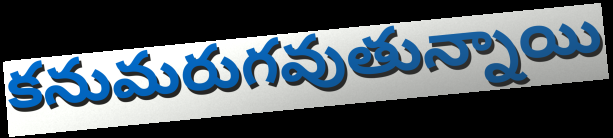
కనుమరుగవుతున్నాయి